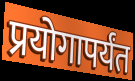
प्रयोगापर्यंत